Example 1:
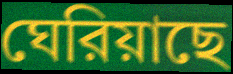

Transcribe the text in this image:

ঘেরিয়াছে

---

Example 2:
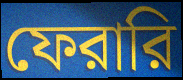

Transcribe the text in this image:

ফেরারি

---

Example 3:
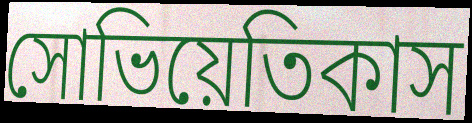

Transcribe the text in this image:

সোভিয়েতিকাস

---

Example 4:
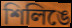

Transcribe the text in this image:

শিলিঙে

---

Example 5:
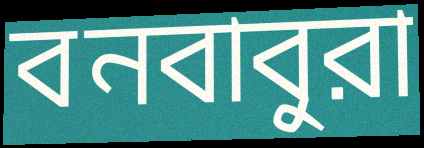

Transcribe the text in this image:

বনবাবুরা